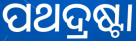
ପଥଦ୍ରଷ୍ଟା